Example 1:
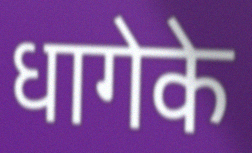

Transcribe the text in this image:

धागेके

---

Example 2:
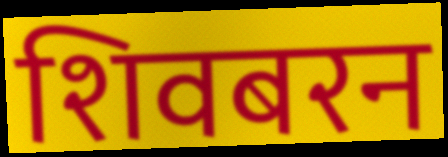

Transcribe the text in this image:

शिवबरन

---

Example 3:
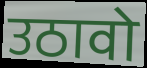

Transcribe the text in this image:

उठावो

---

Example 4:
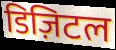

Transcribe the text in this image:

डिज़िटल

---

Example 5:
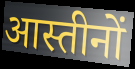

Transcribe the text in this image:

आस्तीनों